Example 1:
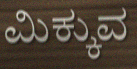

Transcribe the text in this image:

ಮಿಕ್ಕುವ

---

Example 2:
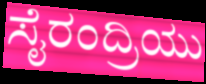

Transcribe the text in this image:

ಸೈರಂದ್ರಿಯು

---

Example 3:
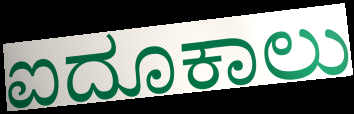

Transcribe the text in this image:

ಐದೂಕಾಲು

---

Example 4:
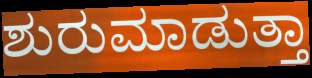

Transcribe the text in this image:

ಶುರುಮಾಡುತ್ತಾ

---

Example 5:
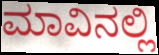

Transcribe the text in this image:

ಮಾವಿನಲ್ಲಿ